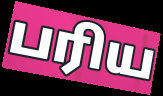
பரிய